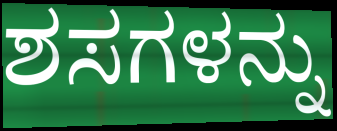
ಶಸಗಳನ್ನು